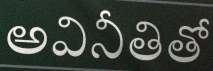
అవినీతితో